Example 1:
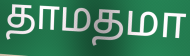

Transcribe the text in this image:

தாமதமா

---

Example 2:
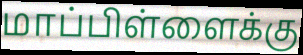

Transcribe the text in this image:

மாப்பிள்ளைக்கு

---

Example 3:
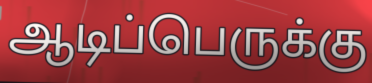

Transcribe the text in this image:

ஆடிப்பெருக்கு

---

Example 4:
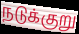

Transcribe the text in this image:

நடுக்குறு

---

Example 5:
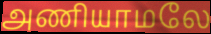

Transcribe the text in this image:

அணியாமலே